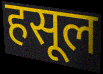
हसूल